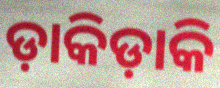
ଡ଼ାକିଡ଼ାକି